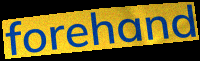
forehand